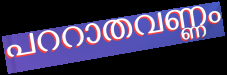
പററാതവണ്ണം